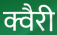
क्वैरी